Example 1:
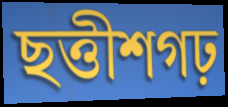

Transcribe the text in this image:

ছত্তীশগঢ়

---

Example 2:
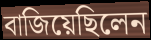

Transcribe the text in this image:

বাজিয়েছিলেন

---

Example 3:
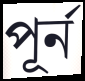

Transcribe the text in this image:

পূর্ন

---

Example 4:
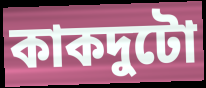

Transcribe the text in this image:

কাকদুটো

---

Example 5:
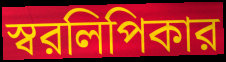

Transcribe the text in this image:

স্বরলিপিকার